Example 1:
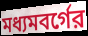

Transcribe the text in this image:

মধ্যমবর্গের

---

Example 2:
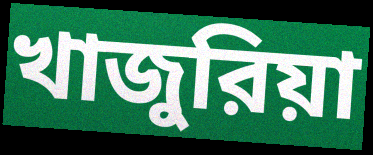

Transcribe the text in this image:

খাজুরিয়া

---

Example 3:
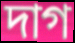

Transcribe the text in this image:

দাগ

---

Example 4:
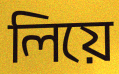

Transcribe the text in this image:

লিয়ে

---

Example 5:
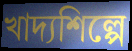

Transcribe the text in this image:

খাদ্যশিল্পে